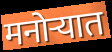
मनोऱ्यात